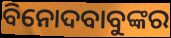
ବିନୋଦବାବୁଙ୍କର